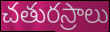
చతురస్రాలు